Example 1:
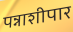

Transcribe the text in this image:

पन्नाशीपार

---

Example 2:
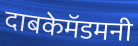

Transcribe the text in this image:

दाबकेमॅडमनी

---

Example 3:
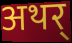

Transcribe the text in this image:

अथर्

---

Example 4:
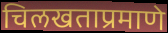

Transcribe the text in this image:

चिलखताप्रमाणे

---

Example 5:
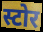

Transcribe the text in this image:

स्टोर